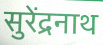
सुरेंद्रनाथ